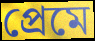
প্রেমে